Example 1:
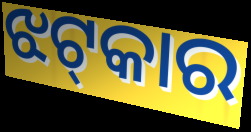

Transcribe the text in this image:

ଝଟ୍‍କାର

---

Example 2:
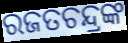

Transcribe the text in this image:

ରଜତଚନ୍ଦ୍ରଙ୍କ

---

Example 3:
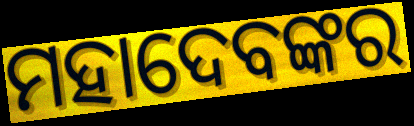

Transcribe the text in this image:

ମହାଦେବଙ୍କର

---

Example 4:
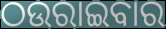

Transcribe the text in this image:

ଠଉରାଇବାର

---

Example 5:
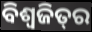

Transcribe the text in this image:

ବିଶ୍ୱଜିତ୍‌ର